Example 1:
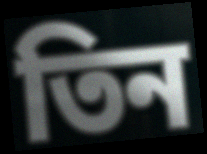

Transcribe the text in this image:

তিন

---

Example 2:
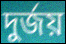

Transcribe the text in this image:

দুৰ্জয়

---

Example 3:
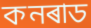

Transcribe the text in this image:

কনৰাড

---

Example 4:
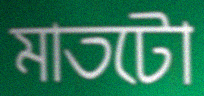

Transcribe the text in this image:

মাতটো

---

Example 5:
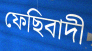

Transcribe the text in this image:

ফেছিবাদী